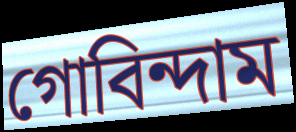
গোবিন্দাম